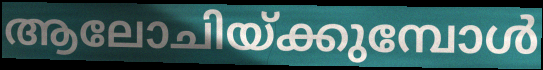
ആലോചിയ്ക്കുമ്പോൾ